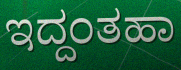
ಇದ್ದಂತಹಾ